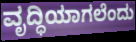
ವೃದ್ಧಿಯಾಗಲೆಂದು